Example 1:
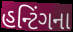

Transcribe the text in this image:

હન્ટિંગના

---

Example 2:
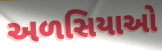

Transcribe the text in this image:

અળસિયાઓ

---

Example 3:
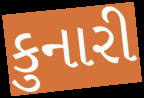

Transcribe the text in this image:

કુનારી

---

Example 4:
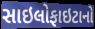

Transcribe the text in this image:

સાઇલોફાઇટાનો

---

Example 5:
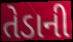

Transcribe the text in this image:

તેડાની